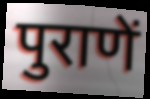
पुराणें